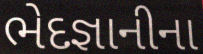
ભેદજ્ઞાનીના